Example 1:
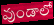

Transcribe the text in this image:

వుండాలో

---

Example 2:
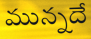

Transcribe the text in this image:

మున్నదే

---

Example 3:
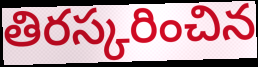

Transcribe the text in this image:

తిరస్కరించిన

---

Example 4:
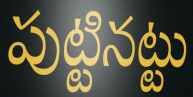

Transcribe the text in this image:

పుట్టినట్టు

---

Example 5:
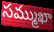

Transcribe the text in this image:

సమ్ముఖా